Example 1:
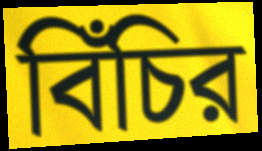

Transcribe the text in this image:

বিঁচির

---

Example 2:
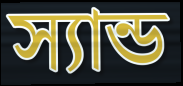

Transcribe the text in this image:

স্যান্ড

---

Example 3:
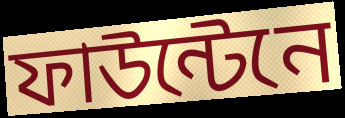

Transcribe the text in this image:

ফাউন্টেনে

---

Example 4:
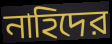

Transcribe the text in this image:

নাহিদের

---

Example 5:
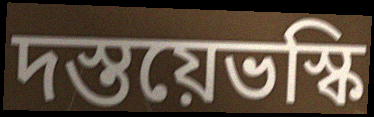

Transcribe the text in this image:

দস্তয়েভস্কি